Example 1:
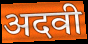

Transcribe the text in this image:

अदवी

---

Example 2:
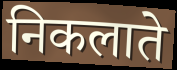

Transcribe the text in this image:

निकलाते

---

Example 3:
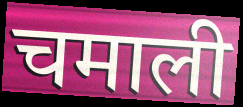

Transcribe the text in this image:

चमाली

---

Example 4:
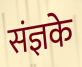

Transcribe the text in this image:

संज्ञके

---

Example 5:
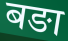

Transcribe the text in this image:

बङा